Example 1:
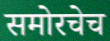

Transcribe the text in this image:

समोरचेच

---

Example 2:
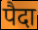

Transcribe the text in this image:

पैदा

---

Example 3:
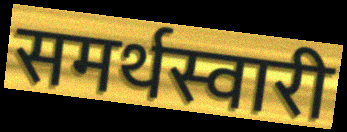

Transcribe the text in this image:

समर्थस्वारी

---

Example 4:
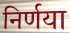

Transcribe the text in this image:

निर्णया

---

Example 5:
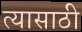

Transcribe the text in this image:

त्यासाठी